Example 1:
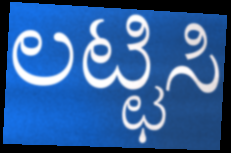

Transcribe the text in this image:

ಲಟ್ಟಿಸಿ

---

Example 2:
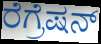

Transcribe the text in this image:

ರೆಗ್ರೆಷನ್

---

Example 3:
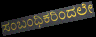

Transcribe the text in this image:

ಸಂಬಂಧಿಕರಿಂದಲೇ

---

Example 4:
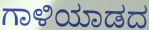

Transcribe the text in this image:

ಗಾಳಿಯಾಡದ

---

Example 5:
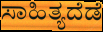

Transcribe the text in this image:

ಸಾಹಿತ್ಯದೆಡೆ